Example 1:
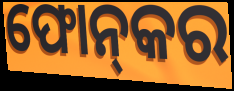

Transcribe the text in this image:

ଫୋନ୍‌କର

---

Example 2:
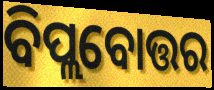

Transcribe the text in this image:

ବିପ୍ଲବୋତ୍ତର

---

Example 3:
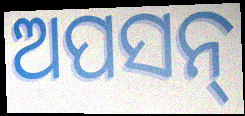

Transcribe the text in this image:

ଅପସନ୍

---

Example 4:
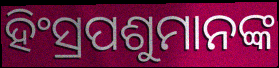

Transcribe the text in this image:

ହିଂସ୍ରପଶୁମାନଙ୍କ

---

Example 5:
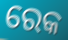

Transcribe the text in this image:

ରେକ